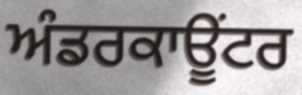
ਅੰਡਰਕਾਊਂਟਰ